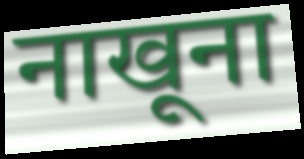
नाखूना